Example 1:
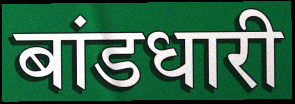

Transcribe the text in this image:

बांडधारी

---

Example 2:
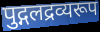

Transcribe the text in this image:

पुद्गलद्रव्यरूप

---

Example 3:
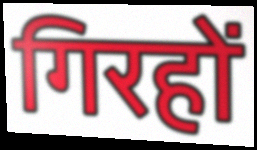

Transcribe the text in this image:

गिरहों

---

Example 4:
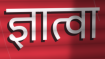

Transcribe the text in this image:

ज्ञात्वा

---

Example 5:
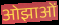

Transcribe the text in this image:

ओझाओं